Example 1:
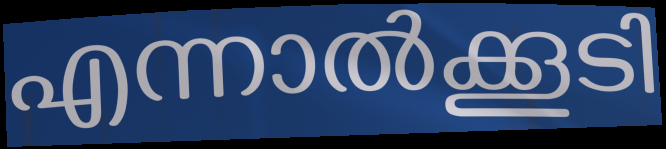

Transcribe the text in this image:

എന്നാൽക്കൂടി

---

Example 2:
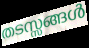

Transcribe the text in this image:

തടസ്സങ്ങൾ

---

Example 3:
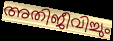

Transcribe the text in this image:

അതിജീവിച്ചും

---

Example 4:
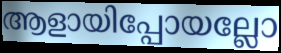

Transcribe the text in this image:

ആളായിപ്പോയല്ലോ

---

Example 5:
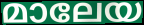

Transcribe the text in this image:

മാലേയ